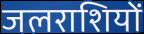
जलराशियों